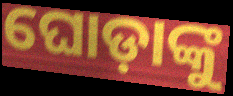
ଘୋଡ଼ାଙ୍କୁ